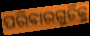
ପରିବାରଗୁଡିକୁ